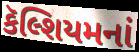
કૅલ્શિયમનાં